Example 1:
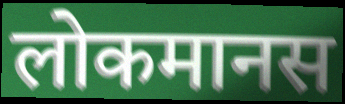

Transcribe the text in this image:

लोकमानस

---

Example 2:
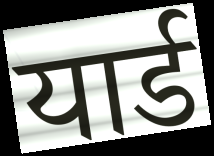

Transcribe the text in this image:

यार्ड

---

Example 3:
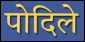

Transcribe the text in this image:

पोदिले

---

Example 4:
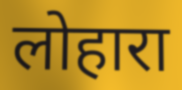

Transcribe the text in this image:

लोहारा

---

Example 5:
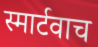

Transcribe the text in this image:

स्मार्टवाच